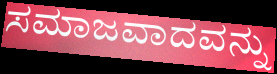
ಸಮಾಜವಾದವನ್ನು